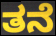
ತನೆ